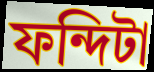
ফন্দিটা